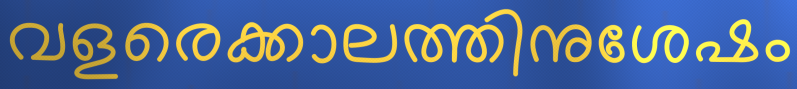
വളരെക്കാലത്തിനുശേഷം